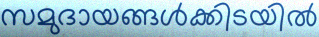
സമുദായങ്ങൾക്കിടയിൽ